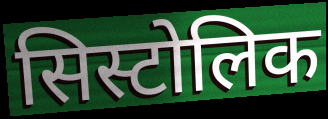
सिस्टोलिक